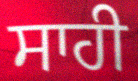
ਸਾਹੀ